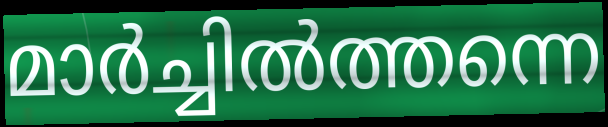
മാർച്ചിൽത്തന്നെ